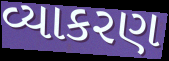
વ્યાકરણ